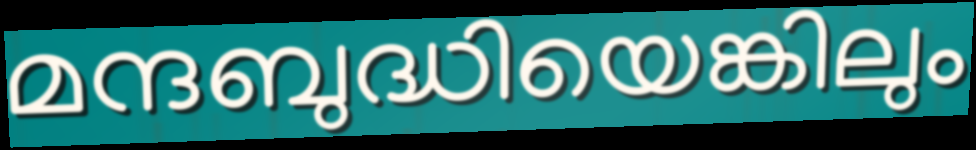
മന്ദബുദ്ധിയെങ്കിലും